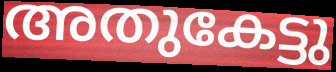
അതുകേട്ടു